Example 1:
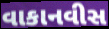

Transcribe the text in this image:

વાકાનવીસ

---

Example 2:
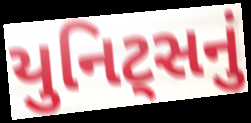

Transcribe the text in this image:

યુનિટ્સનું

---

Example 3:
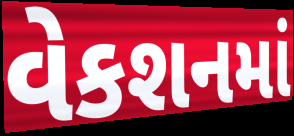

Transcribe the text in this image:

વેકશનમાં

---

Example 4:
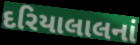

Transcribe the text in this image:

દરિયાલાલનાં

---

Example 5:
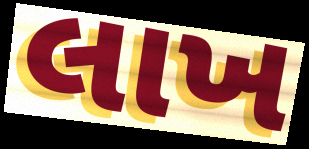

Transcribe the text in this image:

લાખ